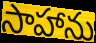
సాహాను